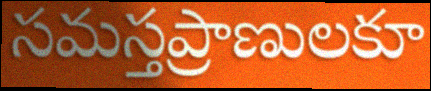
సమస్తప్రాణులకూ